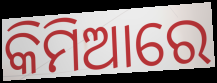
କିମିଆରେ